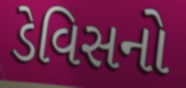
ડેવિસનો